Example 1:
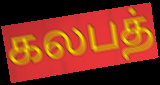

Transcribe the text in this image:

கலபத்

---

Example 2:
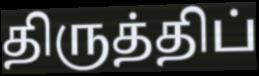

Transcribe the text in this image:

திருத்திப்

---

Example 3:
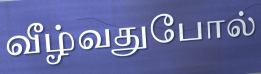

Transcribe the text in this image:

வீழ்வதுபோல்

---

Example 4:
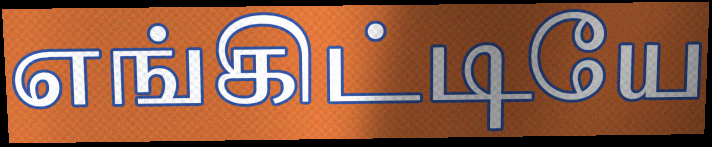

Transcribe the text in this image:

எங்கிட்டியே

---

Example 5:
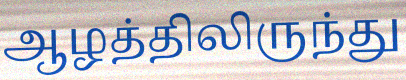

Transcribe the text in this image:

ஆழத்திலிருந்து